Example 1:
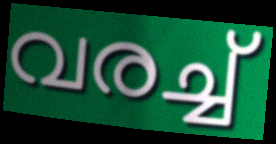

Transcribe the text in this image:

വരച്ച്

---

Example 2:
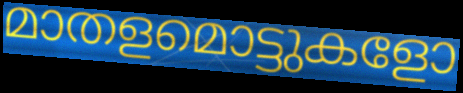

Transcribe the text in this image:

മാതളമൊട്ടുകളോ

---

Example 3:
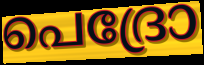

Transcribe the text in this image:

പെദ്രോ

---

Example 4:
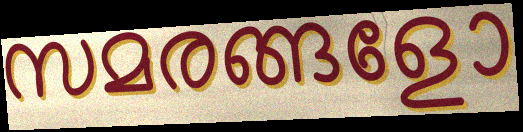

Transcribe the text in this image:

സമരങ്ങളോ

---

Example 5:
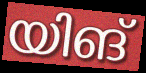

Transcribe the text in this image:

യിങ്